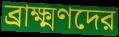
ব্রাক্ষ্মণদের